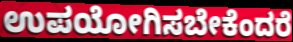
ಉಪಯೋಗಿಸಬೇಕೆಂದರೆ